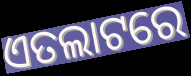
ଏତଲାଟରେ